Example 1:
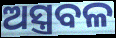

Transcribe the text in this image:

ଅସ୍ତ୍ରବଳ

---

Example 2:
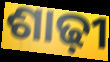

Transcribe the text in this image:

ଶାଢ଼ୀ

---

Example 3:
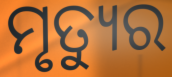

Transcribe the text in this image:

ମୃତ୍ୟୁର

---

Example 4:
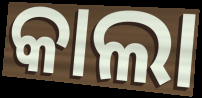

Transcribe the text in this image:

କାଲା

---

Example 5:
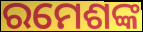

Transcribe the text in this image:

ରମେଶଙ୍କ